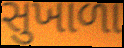
સુખાળા